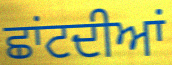
ਛਾਂਟਦੀਆਂ